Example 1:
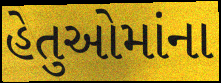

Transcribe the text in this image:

હેતુઓમાંના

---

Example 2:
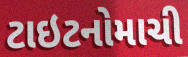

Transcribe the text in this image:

ટાઇટનોમાચી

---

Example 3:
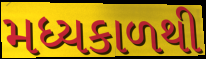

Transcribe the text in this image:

મધ્યકાળથી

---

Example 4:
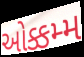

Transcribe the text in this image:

ઓક્કમ્મ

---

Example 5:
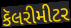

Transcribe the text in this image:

કૅલરીમીટર